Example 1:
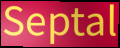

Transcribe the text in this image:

Septal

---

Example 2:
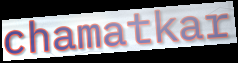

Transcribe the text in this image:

chamatkar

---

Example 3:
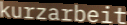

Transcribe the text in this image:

kurzarbeit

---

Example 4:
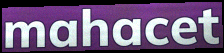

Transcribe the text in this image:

mahacet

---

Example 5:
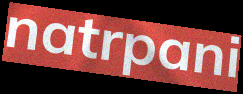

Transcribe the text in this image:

natrpani